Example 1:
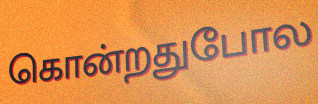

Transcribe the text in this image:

கொன்றதுபோல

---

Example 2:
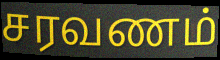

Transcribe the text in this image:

சரவணம்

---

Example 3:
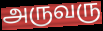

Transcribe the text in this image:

அருவரு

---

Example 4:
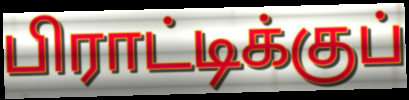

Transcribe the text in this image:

பிராட்டிக்குப்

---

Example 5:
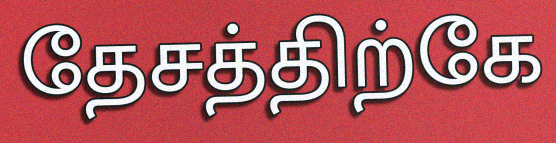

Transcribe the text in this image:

தேசத்திற்கே